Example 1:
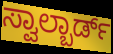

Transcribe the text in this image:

ಸ್ವಾಲ್ಬಾರ್ಡ್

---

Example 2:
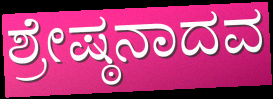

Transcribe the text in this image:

ಶ್ರೇಷ್ಠನಾದವ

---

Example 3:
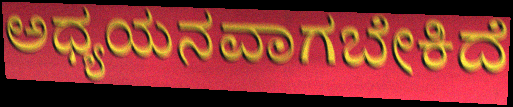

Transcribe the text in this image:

ಅಧ್ಯಯನವಾಗಬೇಕಿದೆ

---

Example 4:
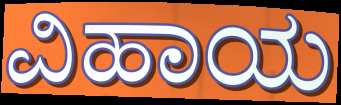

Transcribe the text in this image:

ವಿಹಾಯ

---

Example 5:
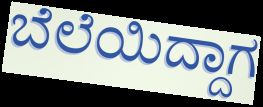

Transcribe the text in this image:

ಬೆಲೆಯಿದ್ದಾಗ